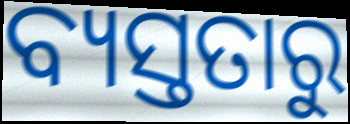
ବ୍ୟସ୍ତତାରୁ